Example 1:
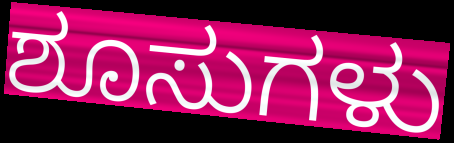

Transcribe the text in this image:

ಶೂಸುಗಳು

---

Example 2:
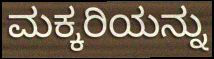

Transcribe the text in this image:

ಮಕ್ಕರಿಯನ್ನು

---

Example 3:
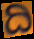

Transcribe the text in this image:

ದಿ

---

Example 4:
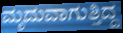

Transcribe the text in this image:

ಮೃದುವಾಗುತ್ತಿದ್ದ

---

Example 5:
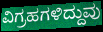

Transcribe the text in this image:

ವಿಗ್ರಹಗಳಿದ್ದುವು